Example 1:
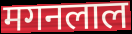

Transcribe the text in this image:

मगनलाल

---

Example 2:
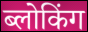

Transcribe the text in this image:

ब्लोकिंग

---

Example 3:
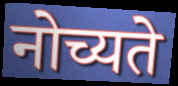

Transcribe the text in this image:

नोच्यते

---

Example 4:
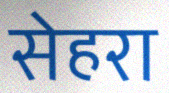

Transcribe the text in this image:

सेहरा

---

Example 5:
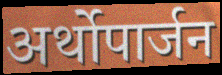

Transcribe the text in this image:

अर्थोपार्जन